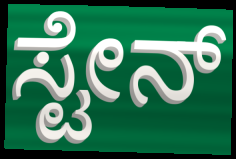
ಸ್ಟೇನ್